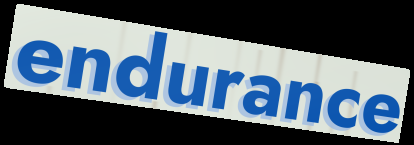
endurance